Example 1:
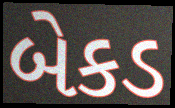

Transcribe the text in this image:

બેકડ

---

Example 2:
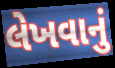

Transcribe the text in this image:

લેખવાનું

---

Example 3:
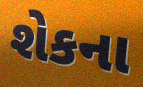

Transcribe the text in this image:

શેકના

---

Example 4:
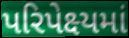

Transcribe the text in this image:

પરિપેક્ષ્યમાં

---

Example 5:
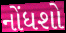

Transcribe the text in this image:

નોંધશો